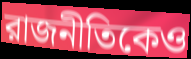
রাজনীতিকেও